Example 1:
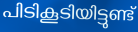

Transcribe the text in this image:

പിടികൂടിയിട്ടുണ്ട്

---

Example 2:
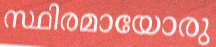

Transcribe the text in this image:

സ്ഥിരമായോരു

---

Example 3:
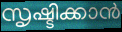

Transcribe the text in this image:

സൃഷ്ടിക്കാൻ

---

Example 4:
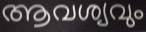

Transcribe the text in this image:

ആവശ്യവും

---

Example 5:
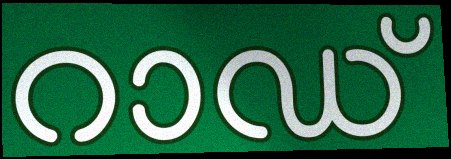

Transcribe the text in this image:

റാഡ്